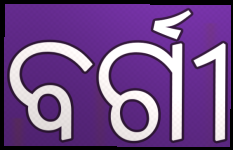
ବର୍ଗୀ